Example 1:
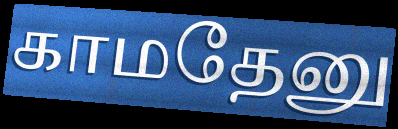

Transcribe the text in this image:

காமதேனு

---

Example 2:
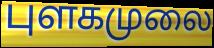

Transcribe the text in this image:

புளகமுலை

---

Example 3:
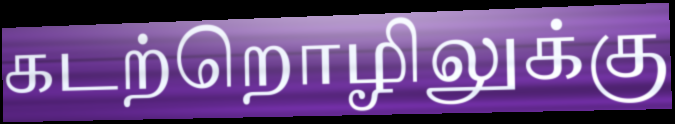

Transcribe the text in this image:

கடற்றொழிலுக்கு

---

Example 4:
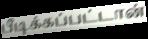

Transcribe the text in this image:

பீடிக்கப்பட்டான்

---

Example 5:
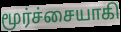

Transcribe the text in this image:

மூர்ச்சையாகி